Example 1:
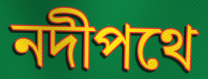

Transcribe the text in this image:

নদীপথে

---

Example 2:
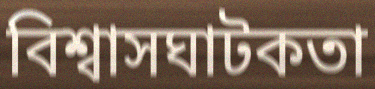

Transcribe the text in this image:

বিশ্বাসঘাটকতা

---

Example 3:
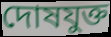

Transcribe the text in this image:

দোষযুক্ত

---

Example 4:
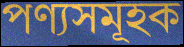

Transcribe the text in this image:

পণ্যসমূহক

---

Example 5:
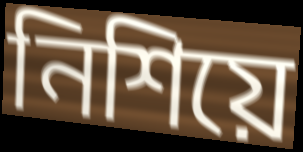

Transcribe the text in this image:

নিশিয়ে